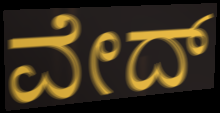
ವೇದ್